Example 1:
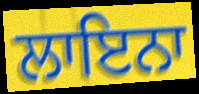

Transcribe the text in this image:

ਲਾਇਨਾ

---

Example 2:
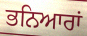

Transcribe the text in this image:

ਭਨਿਆਰਾਂ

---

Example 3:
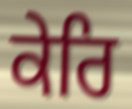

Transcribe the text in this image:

ਕੇਰਿ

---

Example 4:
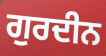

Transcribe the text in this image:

ਗੁਰਦੀਨ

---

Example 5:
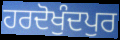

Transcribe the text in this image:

ਹਰਦੋਖੁੰਦਪੁਰ